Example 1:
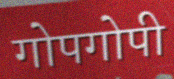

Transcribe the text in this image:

गोपगोपी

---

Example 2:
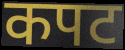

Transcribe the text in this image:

कपट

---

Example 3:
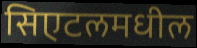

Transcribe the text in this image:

सिएटलमधील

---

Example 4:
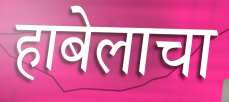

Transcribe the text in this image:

हाबेलाचा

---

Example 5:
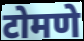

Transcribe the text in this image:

टोमणे